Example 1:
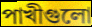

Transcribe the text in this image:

পাখীগুলো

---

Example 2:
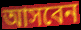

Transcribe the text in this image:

আসবেন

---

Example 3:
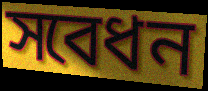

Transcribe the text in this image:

সবেধন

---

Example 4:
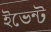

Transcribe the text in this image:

ইভেন্ট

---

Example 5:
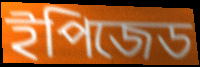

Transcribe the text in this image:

ইপিজেড